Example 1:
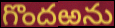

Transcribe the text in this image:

గొందఱను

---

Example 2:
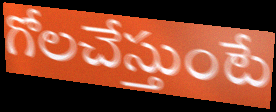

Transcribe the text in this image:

గోలచేస్తుంటే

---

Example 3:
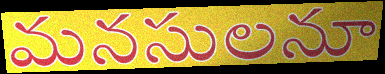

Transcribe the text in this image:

మనసులనూ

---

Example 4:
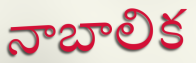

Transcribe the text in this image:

నాబాలిక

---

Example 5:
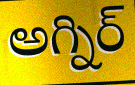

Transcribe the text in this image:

అగ్నిర్